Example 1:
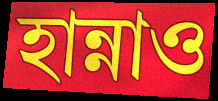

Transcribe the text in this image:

হান্নাও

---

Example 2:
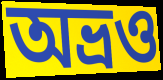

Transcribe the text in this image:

অভ্রও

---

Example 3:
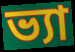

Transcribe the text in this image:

ভ্যা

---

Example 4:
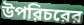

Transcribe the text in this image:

উপরিচরের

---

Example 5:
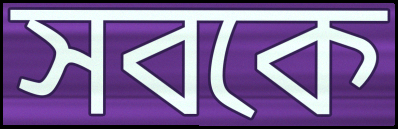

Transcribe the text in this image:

সবকে